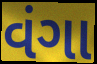
વંગા